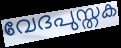
വേദപുസ്തക